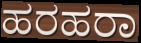
ಹರಹರಾ